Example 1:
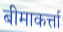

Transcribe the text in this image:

बीमाकर्त्ता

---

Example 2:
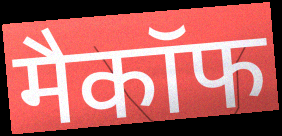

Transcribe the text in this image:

मैकॉफ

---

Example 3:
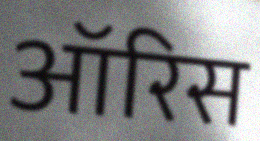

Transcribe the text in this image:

ऑरिस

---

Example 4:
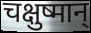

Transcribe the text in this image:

चक्षुष्मान्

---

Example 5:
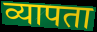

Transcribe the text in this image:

व्यापता